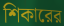
শিকারের